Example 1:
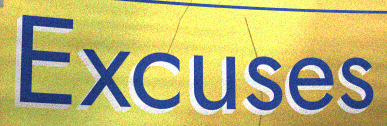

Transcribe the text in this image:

Excuses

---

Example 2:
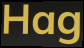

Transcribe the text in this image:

Hag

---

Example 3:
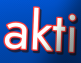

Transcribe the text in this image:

akti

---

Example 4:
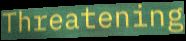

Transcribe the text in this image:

Threatening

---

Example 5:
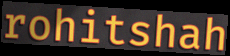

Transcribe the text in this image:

rohitshah